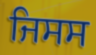
ਜਿਸਸ